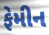
ફેમીન